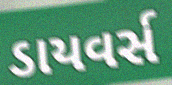
ડાયવર્સ